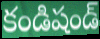
కండిషండ్